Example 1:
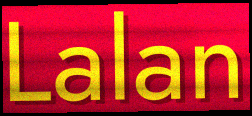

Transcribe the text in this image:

Lalan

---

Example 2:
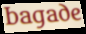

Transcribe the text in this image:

bagade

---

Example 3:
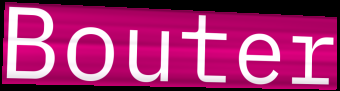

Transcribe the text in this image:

Bouter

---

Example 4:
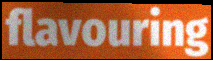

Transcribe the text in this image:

flavouring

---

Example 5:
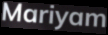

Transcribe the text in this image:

Mariyam